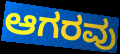
ಆಗರವು